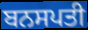
ਬਨਸਪਤੀ